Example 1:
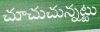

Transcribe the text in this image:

చూచుచున్నట్టు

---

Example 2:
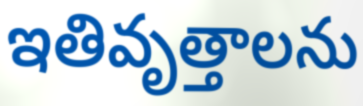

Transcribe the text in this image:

ఇతివృత్తాలను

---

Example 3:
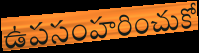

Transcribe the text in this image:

ఉపసంహరించుకో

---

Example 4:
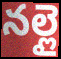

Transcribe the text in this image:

నల్లై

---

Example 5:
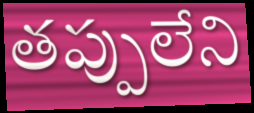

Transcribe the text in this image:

తప్పులేని